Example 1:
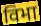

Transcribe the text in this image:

विभा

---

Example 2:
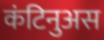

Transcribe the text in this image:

कंटिनुअस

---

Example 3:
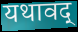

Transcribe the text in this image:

यथावद्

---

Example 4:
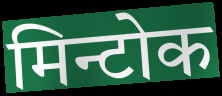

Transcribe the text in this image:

मिन्टोक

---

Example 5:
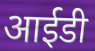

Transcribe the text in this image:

आईडी